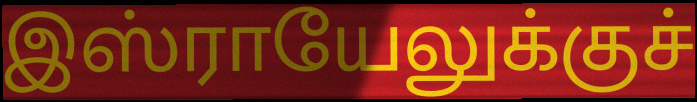
இஸ்ராயேலுக்குச்